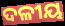
ଦଳୀୟ